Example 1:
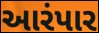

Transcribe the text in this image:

આરંપાર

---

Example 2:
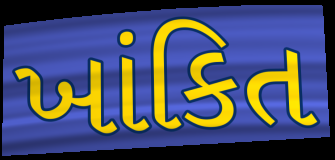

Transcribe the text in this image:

ખાંકિત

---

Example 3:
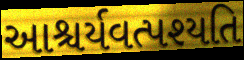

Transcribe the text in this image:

આશ્ચર્યવત્પશ્યતિ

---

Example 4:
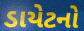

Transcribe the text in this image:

ડાયેટનો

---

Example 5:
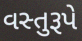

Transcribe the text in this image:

વસ્તુરૂપે